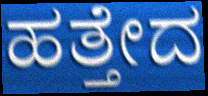
ಹತ್ತೇದ